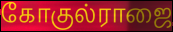
கோகுல்ராஜை